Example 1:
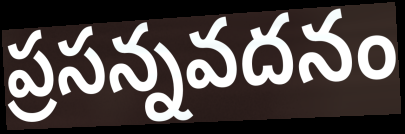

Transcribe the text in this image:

ప్రసన్నవదనం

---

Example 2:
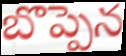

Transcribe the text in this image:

బొప్పెన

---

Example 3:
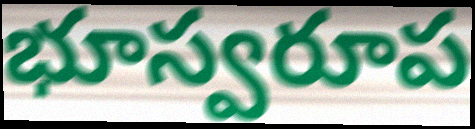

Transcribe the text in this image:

భూస్వరూప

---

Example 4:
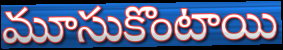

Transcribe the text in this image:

మూసుకొంటాయి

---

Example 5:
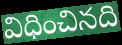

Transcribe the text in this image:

విధించినది